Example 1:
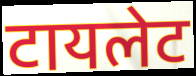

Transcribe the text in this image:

टायलेट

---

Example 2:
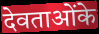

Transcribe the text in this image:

देवताओंके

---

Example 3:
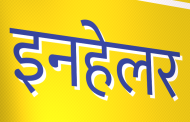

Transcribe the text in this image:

इनहेलर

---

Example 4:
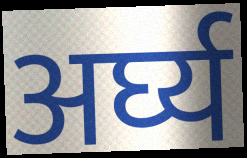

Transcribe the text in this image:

अर्घ्य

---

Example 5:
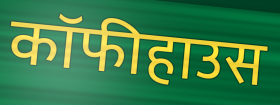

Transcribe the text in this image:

कॉफीहाउस